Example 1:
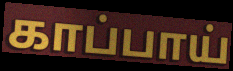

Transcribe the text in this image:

காப்பாய்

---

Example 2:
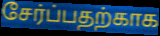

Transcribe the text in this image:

சேர்ப்பதற்காக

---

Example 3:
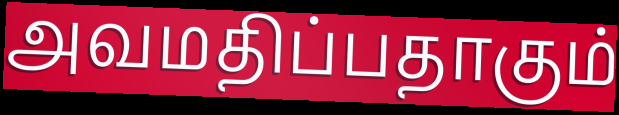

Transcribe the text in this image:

அவமதிப்பதாகும்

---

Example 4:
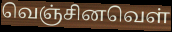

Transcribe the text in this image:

வெஞ்சினவெள்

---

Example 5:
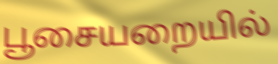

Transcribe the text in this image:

பூசையறையில்